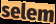
selem